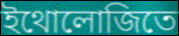
ইথোলোজিতে